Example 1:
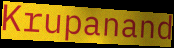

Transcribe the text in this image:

Krupanand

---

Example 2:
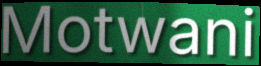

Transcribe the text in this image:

Motwani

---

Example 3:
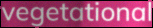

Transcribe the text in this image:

vegetational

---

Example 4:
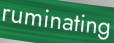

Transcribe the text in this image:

ruminating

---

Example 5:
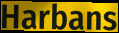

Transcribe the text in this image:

Harbans